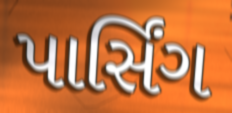
પાર્સિંગ